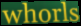
whorls